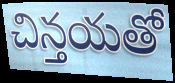
చిన్తయతో